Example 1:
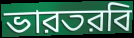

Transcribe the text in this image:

ভারতরবি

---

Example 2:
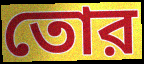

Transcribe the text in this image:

তোর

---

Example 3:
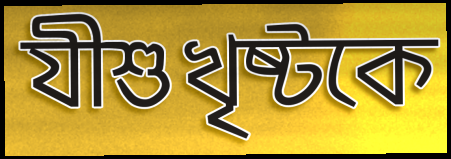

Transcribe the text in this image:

যীশুখৃষ্টকে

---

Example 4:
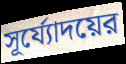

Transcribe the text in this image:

সূর্য্যোদয়ের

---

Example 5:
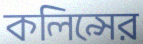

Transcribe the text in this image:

কলিন্সের